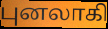
புனலாகி